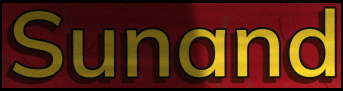
Sunand